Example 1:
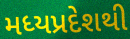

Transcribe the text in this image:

મધ્યપ્રદેશથી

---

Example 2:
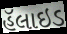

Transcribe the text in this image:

હૅલાઇડ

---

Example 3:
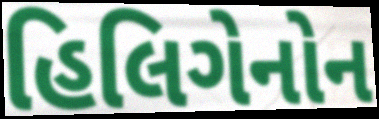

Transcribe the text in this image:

હિલિગેનોન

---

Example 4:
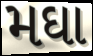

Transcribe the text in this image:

મઘા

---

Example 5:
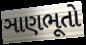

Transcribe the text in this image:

ઞાણભૂતો